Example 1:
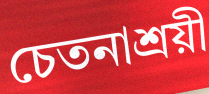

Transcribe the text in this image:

চেতনাশ্রয়ী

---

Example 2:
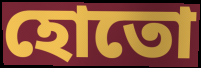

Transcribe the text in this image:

হোতো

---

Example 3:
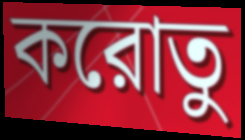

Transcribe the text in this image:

করোতু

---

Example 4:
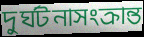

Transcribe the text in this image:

দুর্ঘটনাসংক্রান্ত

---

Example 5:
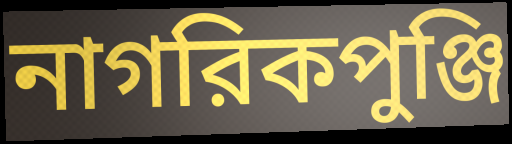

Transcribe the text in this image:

নাগরিকপুঞ্জি